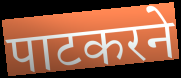
पाटकरने